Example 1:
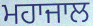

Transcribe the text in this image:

ਮਹਾਜਾਲ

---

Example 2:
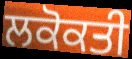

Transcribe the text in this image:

ਲਕੋਕਤੀ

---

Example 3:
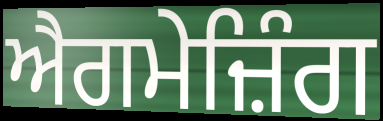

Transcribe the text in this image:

ਐਗਮੇਜ਼ਿੰਗ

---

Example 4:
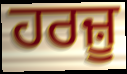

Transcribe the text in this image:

ਹਰਜ਼ੂ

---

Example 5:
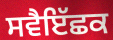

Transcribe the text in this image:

ਸਵੈਇੱਛਕ